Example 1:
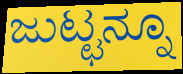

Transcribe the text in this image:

ಜುಟ್ಟನ್ನೂ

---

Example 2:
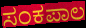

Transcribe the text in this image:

ಸಂಕಪಾಲ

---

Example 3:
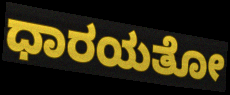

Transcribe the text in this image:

ಧಾರಯತೋ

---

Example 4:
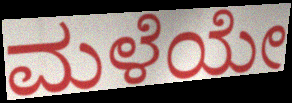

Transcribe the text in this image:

ಮಳೆಯೇ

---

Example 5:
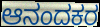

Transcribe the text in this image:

ಆನಂದಕರ